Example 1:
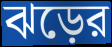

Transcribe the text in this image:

ঝড়ের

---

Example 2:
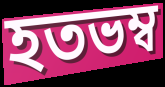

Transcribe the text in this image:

হতভম্ব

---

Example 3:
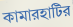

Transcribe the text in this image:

কামারহাটির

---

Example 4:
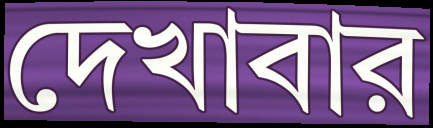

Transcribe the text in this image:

দেখাবার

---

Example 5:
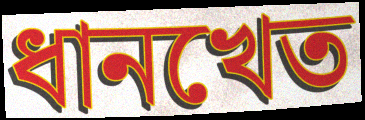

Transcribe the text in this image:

ধানখেত